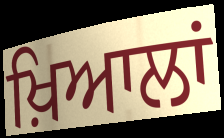
ਖ਼ਿਆਲਾਂ